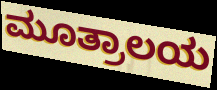
ಮೂತ್ರಾಲಯ